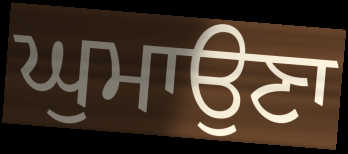
ਘੁਮਾਉਣਾ